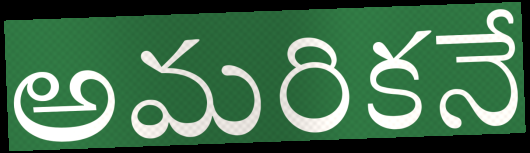
అమరికనే